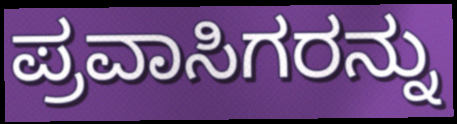
ಪ್ರವಾಸಿಗರನ್ನು